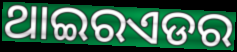
ଥାଇରଏଡର